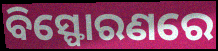
ବିସ୍ଫୋରଣରେ